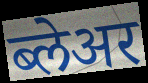
ब्लेअर